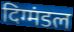
दिग्मंडल